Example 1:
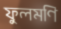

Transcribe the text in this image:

ফুলমণি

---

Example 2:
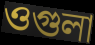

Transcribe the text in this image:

ওগুলা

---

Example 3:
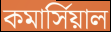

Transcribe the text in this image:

কমার্সিয়াল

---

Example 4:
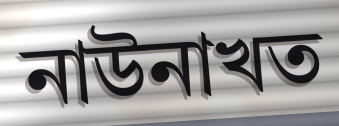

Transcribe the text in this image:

নাউনাখত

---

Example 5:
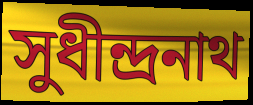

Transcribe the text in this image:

সুধীন্দ্রনাথ